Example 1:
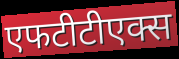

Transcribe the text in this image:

एफटीटीएक्स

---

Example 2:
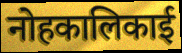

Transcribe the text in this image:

नोहकालिकाई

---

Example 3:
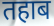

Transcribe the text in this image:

तहाब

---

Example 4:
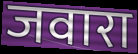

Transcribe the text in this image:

जवारा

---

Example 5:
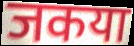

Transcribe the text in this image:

जकया